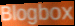
Blogbox